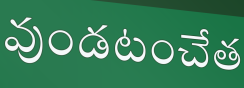
వుండటంచేత